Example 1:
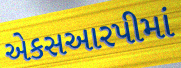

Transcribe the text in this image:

એકસઆરપીમાં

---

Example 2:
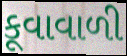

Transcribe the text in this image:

કૂવાવાળી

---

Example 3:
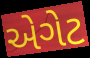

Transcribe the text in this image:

એગેટ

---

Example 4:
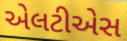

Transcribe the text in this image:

એલટીએસ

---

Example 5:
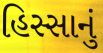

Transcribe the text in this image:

હિસ્સાનું